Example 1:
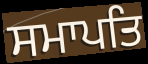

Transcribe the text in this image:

ਸਮਾਪਤਿ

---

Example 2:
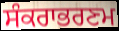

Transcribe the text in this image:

ਸੰਕਰਾਭਰਣਮ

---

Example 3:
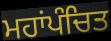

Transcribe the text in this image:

ਮਹਾਂਪੰਚਿਤ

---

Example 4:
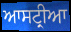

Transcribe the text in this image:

ਆਸਟ੍ਰੀਆ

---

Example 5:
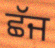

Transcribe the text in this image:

ਛੱਜ